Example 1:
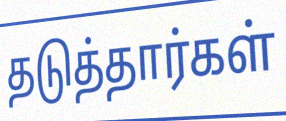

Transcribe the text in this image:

தடுத்தார்கள்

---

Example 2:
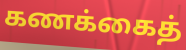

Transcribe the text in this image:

கணக்கைத்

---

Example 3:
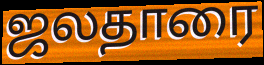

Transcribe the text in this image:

ஜலதாரை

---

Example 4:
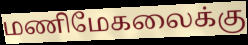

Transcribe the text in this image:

மணிமேகலைக்கு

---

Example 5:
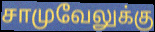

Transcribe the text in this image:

சாமுவேலுக்கு